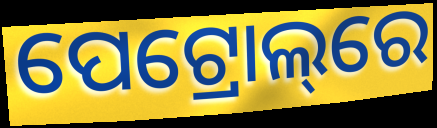
ପେଟ୍ରୋଲ୍‌ରେ